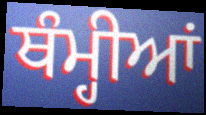
ਥੰਮ੍ਹੀਆਂ